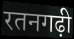
रतनगढ़ी